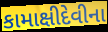
કામાક્ષીદેવીના